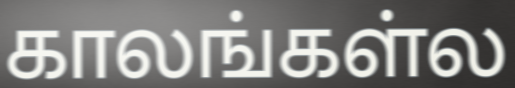
காலங்கள்ல